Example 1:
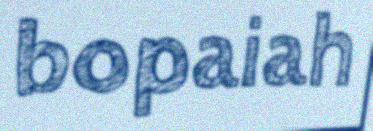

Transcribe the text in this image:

bopaiah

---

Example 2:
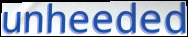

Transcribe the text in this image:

unheeded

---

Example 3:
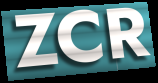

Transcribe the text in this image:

ZCR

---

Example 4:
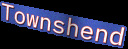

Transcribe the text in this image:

Townshend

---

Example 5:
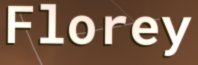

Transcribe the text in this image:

Florey